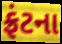
ફ્રંટના